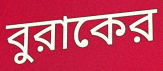
বুরাকের